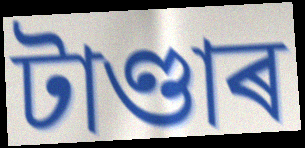
টাণ্ডাৰ